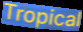
Tropical